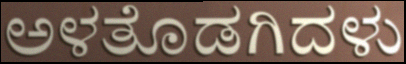
ಅಳತೊಡಗಿದಳು